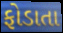
ફોડાતા